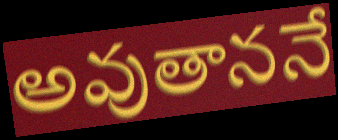
అవుతాననే